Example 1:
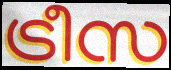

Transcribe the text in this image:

ട്രീസ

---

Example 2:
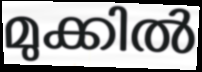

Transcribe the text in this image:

മുക്കിൽ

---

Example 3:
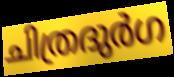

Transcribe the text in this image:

ചിത്രദുർഗ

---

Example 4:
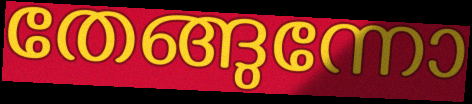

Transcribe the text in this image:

തേങ്ങുന്നോ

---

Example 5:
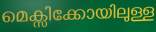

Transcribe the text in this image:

മെക്സിക്കോയിലുള്ള